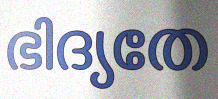
ഭിദ്യതേ